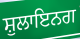
ਸ਼ੁਲਾਇਨਗ